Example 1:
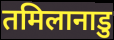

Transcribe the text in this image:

तमिलानाडु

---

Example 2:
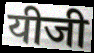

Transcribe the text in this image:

यीजी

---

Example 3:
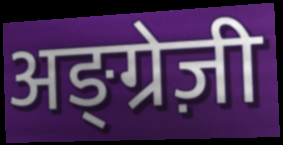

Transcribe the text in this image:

अङ्ग्रेज़ी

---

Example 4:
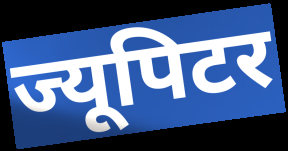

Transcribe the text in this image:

ज्यूपिटर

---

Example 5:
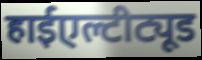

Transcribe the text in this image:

हाईएल्टीट्यूड